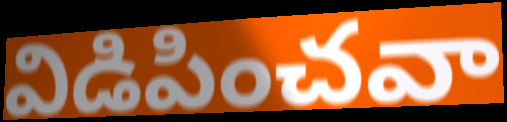
విడిపించవా